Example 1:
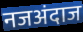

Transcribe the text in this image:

नजअंदाज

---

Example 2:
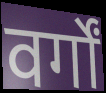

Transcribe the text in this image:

वर्गों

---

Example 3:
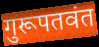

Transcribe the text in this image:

गुरूपतवंत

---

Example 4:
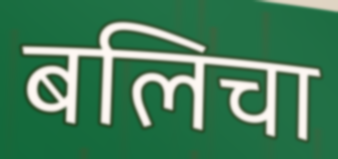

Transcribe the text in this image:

बलिचा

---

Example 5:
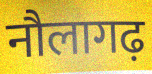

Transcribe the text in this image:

नौलागढ़